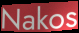
Nakos